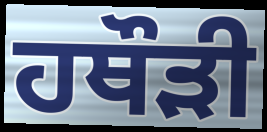
ਹਥੌੜੀ